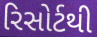
રિસોર્ટથી